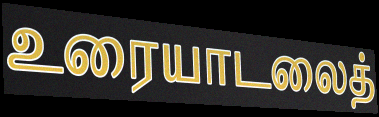
உரையாடலைத்